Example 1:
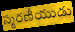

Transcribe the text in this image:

స్మరణీయుడు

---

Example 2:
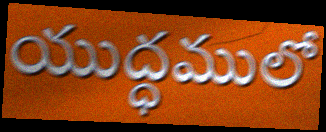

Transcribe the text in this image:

యుద్ధములో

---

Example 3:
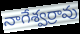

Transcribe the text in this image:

నాగేశ్వర్రావు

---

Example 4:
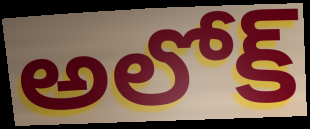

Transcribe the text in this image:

అలోక్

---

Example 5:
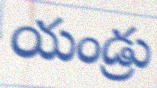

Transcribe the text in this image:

యండ్రు